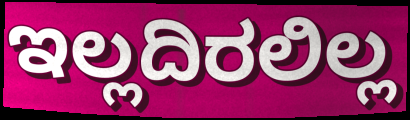
ಇಲ್ಲದಿರಲಿಲ್ಲ